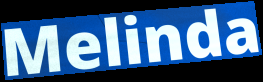
Melinda